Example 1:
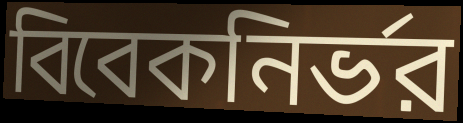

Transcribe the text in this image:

বিবেকনির্ভর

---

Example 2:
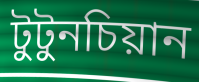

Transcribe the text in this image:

টুটুনচিয়ান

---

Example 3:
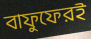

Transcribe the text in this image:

বাফুফেরই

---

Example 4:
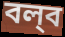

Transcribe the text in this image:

বল্‌ব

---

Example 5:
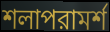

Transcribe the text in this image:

শলাপরামর্শ